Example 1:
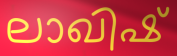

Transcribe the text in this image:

ലാഖിഷ്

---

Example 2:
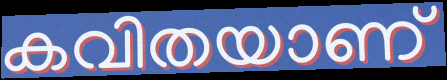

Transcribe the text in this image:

കവിതയാണ്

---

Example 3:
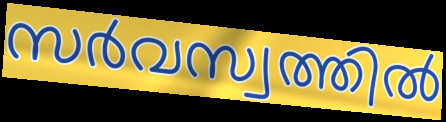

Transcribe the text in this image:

സർവസ്വത്തിൽ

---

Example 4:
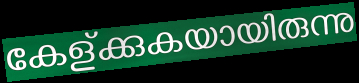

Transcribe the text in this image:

കേള്ക്കുകയായിരുന്നു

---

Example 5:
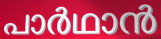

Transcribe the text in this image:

പാർഥാൻ